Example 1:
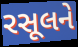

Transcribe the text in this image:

રસૂલને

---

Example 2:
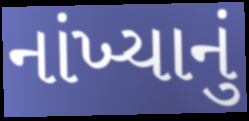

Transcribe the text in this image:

નાંખ્યાનું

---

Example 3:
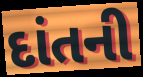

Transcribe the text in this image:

દાંતની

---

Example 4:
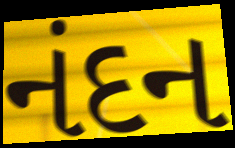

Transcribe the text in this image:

નંદન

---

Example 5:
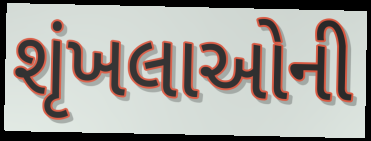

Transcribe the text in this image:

શૃંખલાઓની